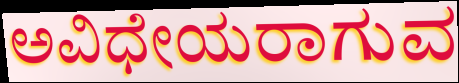
ಅವಿಧೇಯರಾಗುವ